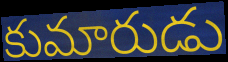
కుమారుడు